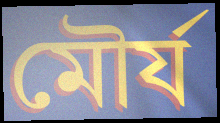
মৌর্য